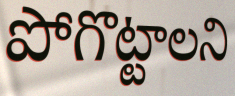
పోగొట్టాలని